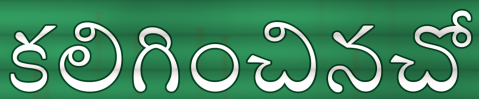
కలిగించినచో